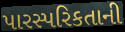
પારસ્પરિકતાની